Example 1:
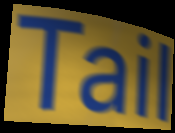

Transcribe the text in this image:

Tail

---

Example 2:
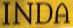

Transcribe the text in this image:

INDA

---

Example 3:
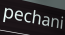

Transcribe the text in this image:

pechani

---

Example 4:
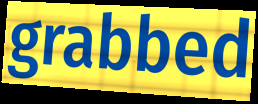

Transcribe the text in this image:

grabbed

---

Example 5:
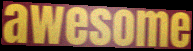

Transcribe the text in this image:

awesome